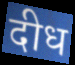
दीध